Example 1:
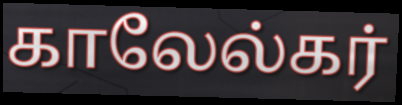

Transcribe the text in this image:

காலேல்கர்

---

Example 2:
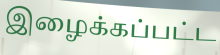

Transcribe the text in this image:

இழைக்கப்பட்ட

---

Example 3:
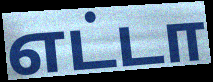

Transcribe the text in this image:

எட்டா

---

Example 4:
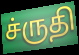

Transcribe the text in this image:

ச்ருதி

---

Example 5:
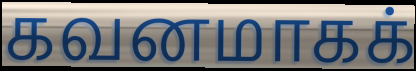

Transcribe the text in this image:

கவனமாகக்